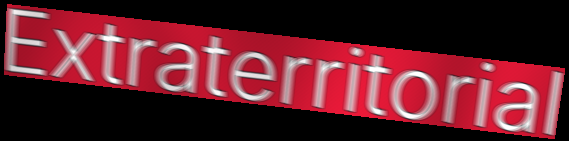
Extraterritorial